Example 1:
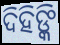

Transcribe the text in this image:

ଦିହିଙ୍କି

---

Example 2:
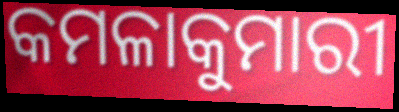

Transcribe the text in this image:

କମଳାକୁମାରୀ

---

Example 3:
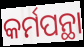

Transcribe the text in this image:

କର୍ମପନ୍ଥା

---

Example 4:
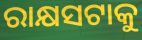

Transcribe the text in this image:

ରାକ୍ଷସଟାକୁ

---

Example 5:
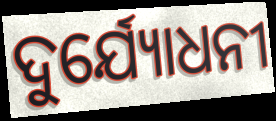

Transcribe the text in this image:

ଦୁର୍ଯ୍ୟୋଧନୀ